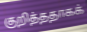
குறித்ததாகக்